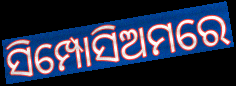
ସିମ୍ପୋସିଅମରେ